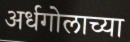
अर्धगोलाच्या